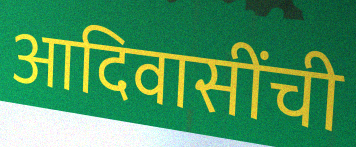
आदिवासींची